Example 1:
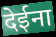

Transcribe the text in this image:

देईना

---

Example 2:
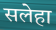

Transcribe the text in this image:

सलेहा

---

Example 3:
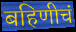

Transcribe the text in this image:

बहिणीचं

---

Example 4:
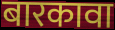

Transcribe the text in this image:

बारकावा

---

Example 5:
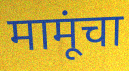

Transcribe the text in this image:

मामूंचा